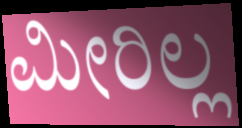
ಮೀರಿಲ್ಲ